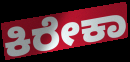
ಕಿರೇಕಾ